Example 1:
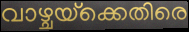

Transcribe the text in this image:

വാഴ്ചയ്‌ക്കെതിരെ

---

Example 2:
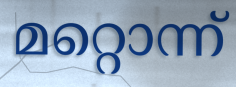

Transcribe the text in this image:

മറ്റൊന്ന്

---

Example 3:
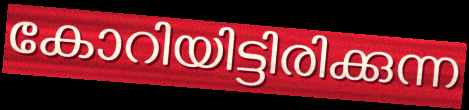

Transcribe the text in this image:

കോറിയിട്ടിരിക്കുന്ന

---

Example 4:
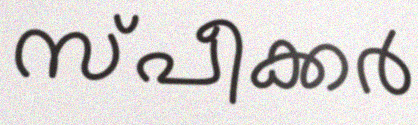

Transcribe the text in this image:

സ്പീക്കർ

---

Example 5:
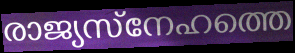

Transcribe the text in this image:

രാജ്യസ്‌നേഹത്തെ